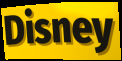
Disney